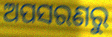
ଅପସରଣରୁ